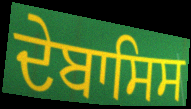
ਦੇਬਾਸਿਸ